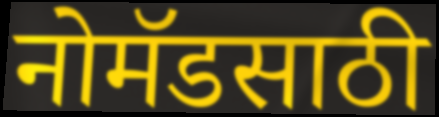
नोमॅडसाठी